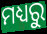
ମଧ୍ୟରୁ